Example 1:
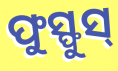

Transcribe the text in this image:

ଫୁସ୍ଫୁସ୍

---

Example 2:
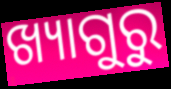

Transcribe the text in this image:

ଖ୍ୟାଗୁରୁ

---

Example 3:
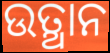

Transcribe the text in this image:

ଉତ୍ଥାନ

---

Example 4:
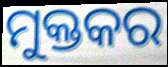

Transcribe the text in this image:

ମୁକ୍ତକର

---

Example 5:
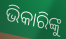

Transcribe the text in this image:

ଭିକାରିଙ୍କୁ